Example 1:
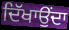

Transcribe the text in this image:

ਦਿੱਖਾਉਂਦਾ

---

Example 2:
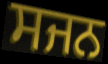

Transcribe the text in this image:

ਸਜਨ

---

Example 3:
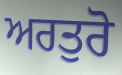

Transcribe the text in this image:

ਅਰਤੁਰੋ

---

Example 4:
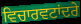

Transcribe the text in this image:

ਵਿਚਾਰਵਟਾਂਦਰੇ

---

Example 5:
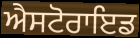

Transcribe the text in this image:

ਐਸਟੋਰਾਇਡ